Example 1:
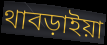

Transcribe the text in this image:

থাবড়াইয়া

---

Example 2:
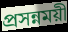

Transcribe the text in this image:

প্রসন্নময়ী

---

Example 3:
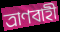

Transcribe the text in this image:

ত্রাণবাহী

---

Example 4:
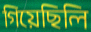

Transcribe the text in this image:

গিয়েছিলি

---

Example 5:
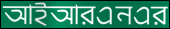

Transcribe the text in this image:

আইআরএনএর